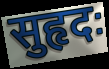
सुहृदः